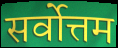
सर्वोत्तम